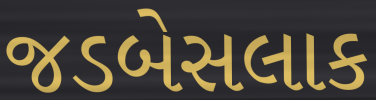
જડબેસલાક